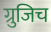
ग्रुजिच